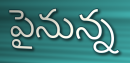
పైనున్న